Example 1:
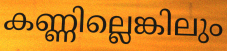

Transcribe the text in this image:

കണ്ണില്ലെങ്കിലും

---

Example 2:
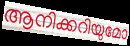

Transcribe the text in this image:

ആനിക്കറിയുമോ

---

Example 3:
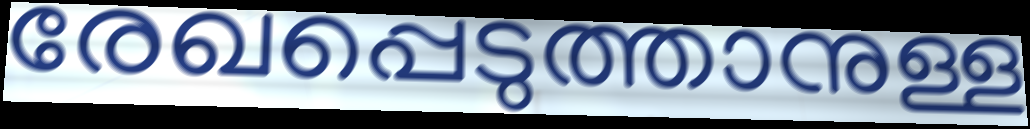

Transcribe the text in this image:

രേഖപ്പെടുത്താനുള്ള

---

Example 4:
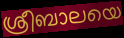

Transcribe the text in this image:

ശ്രീബാലയെ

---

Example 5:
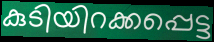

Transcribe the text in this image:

കുടിയിറക്കപ്പെട്ട